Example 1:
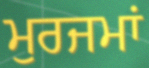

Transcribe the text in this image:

ਮੁਰਜਮਾਂ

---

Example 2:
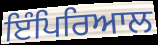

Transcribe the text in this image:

ਇੰਪਿਰਿਆਲ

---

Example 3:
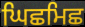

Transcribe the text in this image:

ਘਿਛਮਿਛ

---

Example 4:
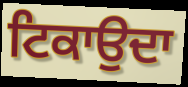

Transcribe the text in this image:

ਟਿਕਾਉਦਾ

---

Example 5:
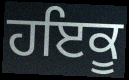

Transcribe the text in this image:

ਹਇਕੂ